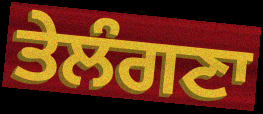
ਤੇਲੰਗਣਾ